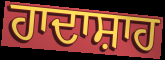
ਹਾਦਾਸ਼ਾਹ